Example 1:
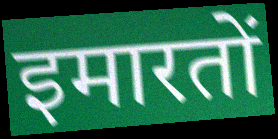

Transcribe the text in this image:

इमारतों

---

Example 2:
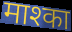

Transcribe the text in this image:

माश्का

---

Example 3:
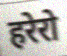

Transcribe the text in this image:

हरेरो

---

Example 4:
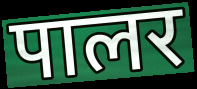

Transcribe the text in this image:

पालर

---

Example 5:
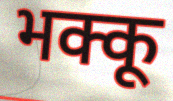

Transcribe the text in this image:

भक्कू